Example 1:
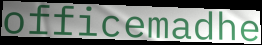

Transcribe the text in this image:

officemadhe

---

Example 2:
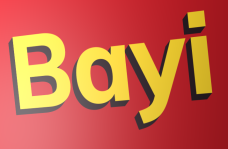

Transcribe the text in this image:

Bayi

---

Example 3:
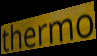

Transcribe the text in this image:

thermo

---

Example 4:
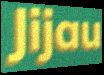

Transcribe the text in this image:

Jijau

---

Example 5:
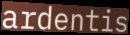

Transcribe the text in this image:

ardentis